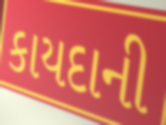
કાયદાની